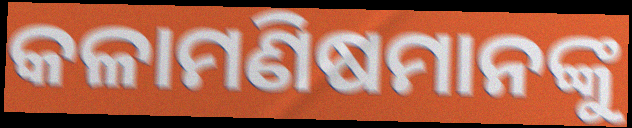
କଳାମଣିଷମାନଙ୍କୁ